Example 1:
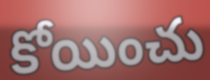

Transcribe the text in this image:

కోయించు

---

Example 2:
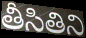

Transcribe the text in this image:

తీసితిని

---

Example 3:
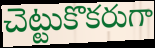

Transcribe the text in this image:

చెట్టుకొకరుగా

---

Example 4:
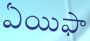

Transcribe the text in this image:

ఏయిఫా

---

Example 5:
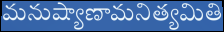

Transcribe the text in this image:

మనుష్యాణామనిత్యమితి